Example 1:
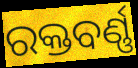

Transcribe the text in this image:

ରକ୍ତବର୍ଣ୍ଣ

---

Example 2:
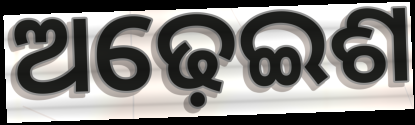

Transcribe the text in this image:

ଅଢ଼େଇଶ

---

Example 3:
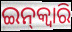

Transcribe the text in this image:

ଇନ୍‌କ୍ଵାରି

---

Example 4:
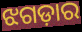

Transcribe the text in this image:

ଝଗଡ଼ାର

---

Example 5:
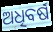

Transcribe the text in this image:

ଅଧିବର୍ଷ